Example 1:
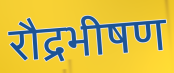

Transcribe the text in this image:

रौद्रभीषण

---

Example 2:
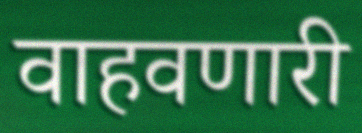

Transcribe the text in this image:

वाहवणारी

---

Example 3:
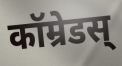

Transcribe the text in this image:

कॉम्रेडस्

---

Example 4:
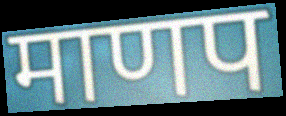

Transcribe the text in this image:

माणप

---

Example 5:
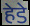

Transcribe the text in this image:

हेडे